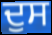
ਦੁਸ